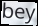
bey